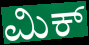
ಮಿಕ್